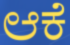
ಆಕೆ